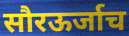
सौरऊर्जाच